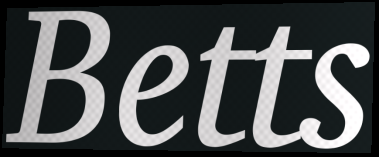
Betts